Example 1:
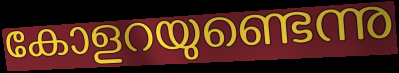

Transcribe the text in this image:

കോളറയുണ്ടെന്നു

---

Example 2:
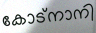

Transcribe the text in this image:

കോട്നാനി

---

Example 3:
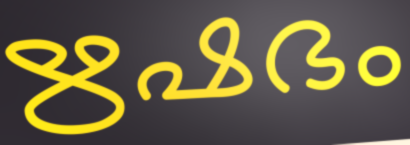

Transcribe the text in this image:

ഋഷഭം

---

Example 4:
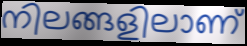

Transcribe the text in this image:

നിലങ്ങളിലാണ്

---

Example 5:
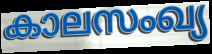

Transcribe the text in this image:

കാലസംഖ്യ